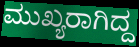
ಮುಖ್ಯರಾಗಿದ್ದ